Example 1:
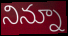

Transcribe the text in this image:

నిన్నూ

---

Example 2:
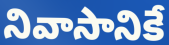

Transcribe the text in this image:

నివాసానికే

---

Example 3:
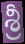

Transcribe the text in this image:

శ్రీ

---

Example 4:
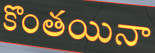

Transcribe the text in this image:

కొంతయినా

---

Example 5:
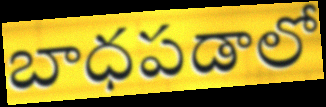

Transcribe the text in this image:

బాధపడాలో